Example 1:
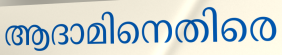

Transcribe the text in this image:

ആദാമിനെതിരെ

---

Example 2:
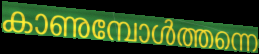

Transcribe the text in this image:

കാണുമ്പോൾത്തന്നെ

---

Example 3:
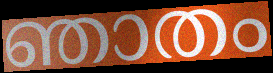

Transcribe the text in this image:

ഞാതം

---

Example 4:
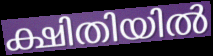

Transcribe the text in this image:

ക്ഷിതിയിൽ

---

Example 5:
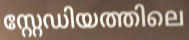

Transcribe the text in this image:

സ്റ്റേഡിയത്തിലെ